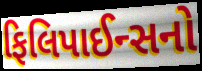
ફિલિપાઈન્સનો